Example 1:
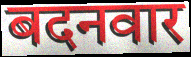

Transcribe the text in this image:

बदनवार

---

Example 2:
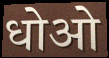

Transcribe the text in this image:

धोओ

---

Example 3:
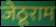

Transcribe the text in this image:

जेठूराम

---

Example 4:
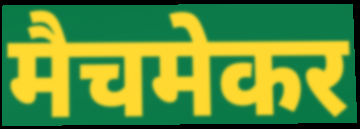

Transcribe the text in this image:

मैचमेकर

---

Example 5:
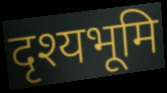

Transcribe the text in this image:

दृश्यभूमि